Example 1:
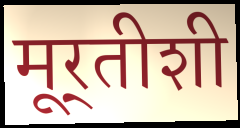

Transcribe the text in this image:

मूर्तीशी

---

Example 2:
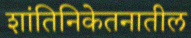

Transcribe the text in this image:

शांतिनिकेतनातील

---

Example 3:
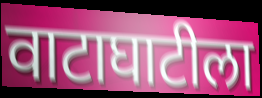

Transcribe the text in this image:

वाटाघाटीला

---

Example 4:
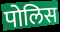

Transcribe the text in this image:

पोलिस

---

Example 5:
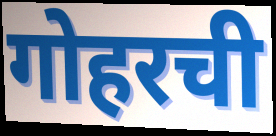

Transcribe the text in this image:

गोहरची